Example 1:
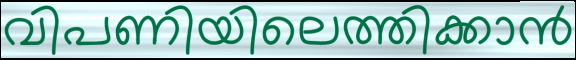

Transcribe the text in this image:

വിപണിയിലെത്തിക്കാൻ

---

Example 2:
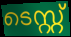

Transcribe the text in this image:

ടെസ്റ്റ്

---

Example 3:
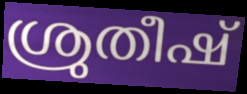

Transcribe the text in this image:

ശ്രുതീഷ്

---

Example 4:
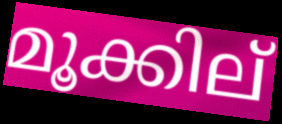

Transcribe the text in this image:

മൂക്കില്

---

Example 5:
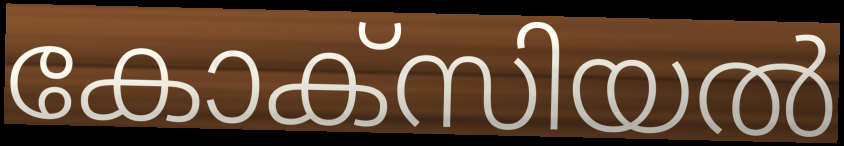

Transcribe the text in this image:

കോക്സിയൽ